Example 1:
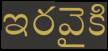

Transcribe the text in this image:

ఇరవైకి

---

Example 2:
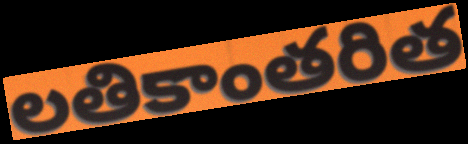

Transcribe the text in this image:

లతికాంతరిత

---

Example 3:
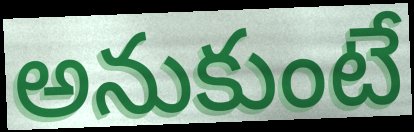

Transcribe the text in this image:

అనుకుంటే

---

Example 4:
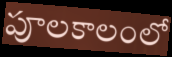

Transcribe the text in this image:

పూలకాలంలో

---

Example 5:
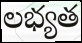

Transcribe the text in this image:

లభ్యత